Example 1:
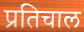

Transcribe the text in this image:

प्रतिचाल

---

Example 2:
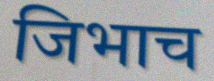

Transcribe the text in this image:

जिभाच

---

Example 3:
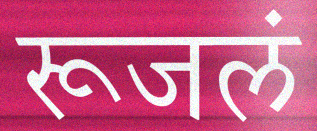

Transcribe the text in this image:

रूजलं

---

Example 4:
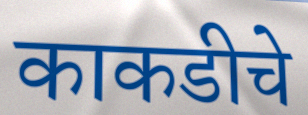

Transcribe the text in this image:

काकडीचे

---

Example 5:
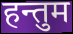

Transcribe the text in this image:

हन्तुम